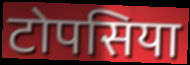
टोपसिया